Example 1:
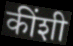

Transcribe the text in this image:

कींशी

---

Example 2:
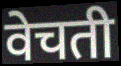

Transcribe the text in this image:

वेचती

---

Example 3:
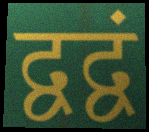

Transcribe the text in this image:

द्वद्वं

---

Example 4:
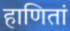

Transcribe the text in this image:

हाणितां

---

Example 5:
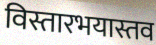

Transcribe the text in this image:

विस्तारभयास्तव